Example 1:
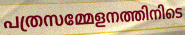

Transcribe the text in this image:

പത്രസമ്മേളനത്തിനിടെ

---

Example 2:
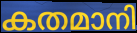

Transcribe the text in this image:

കതമാനി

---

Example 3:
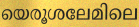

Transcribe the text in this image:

യെരൂശലേമിലെ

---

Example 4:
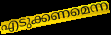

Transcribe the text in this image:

എടുക്കണമെന്ന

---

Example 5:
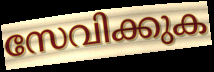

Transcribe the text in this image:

സേവിക്കുക